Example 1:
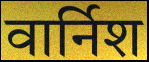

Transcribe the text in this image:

वार्निश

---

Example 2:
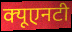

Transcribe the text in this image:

क्यूएनटी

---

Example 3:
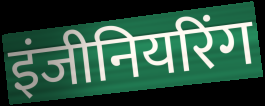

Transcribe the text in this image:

इंजीनियरिंग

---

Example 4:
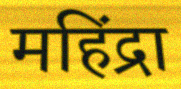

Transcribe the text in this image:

महिंद्रा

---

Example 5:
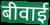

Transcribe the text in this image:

बीवाई